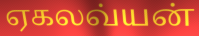
ஏகலவ்யன்